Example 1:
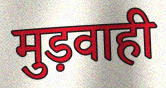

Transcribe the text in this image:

मुड़वाही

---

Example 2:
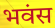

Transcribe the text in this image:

भवंस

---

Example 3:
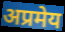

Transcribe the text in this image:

अप्रमेय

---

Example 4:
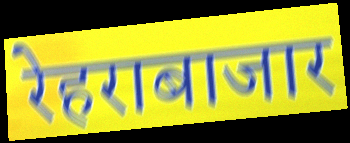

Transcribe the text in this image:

रेहराबाजार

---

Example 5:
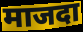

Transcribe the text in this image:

माजदा